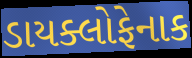
ડાયક્લોફેનાક